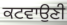
ਕਟਵਾਉਣੀ